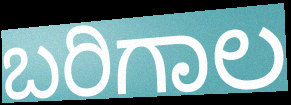
ಬರಿಗಾಲ